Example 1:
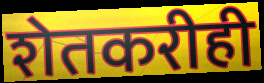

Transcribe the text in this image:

शेतकरीही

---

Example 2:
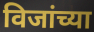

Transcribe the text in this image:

विजांच्या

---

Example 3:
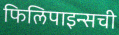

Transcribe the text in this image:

फिलिपाइन्सची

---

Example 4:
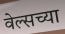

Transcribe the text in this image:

वेल्सच्या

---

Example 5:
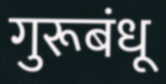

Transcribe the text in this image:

गुरूबंधू